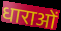
धाराओं